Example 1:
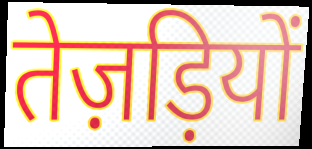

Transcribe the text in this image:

तेज़ड़ियों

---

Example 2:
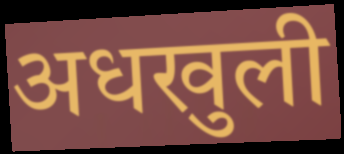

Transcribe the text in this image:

अधखुली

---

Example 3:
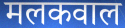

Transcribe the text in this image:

मलकवाल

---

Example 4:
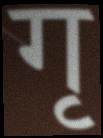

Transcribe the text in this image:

गृ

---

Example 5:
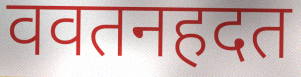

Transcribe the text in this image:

ववतनहदत